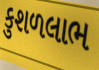
કુશળલાભ